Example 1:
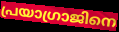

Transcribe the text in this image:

പ്രയാഗ്രാജിനെ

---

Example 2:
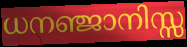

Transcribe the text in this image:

ധനഞ്ജാനിസ്സ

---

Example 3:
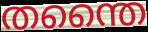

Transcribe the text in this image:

തന്തൈ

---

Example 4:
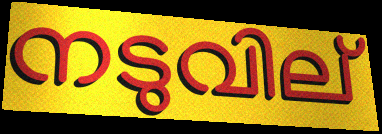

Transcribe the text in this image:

നടുവില്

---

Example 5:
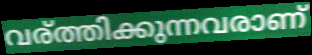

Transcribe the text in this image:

വര്ത്തിക്കുന്നവരാണ്